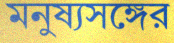
মনুষ্যসঙ্গের